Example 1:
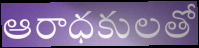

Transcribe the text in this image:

ఆరాధకులతో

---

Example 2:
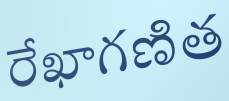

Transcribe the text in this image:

రేఖాగణిత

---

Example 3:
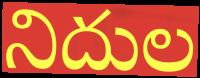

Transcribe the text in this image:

నిదుల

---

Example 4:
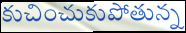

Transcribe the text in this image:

కుచించుకుపోతున్న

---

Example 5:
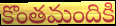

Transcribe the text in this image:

కొంతమందికి